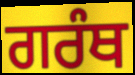
ਗਰੰਥ